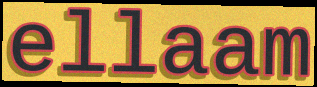
ellaam